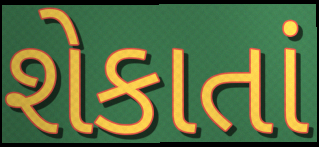
શેકાતાં